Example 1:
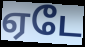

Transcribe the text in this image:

ஏடே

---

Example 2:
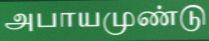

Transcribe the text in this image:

அபாயமுண்டு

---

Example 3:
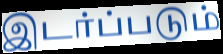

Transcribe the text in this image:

இடர்ப்படும்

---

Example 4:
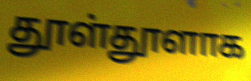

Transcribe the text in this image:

தூள்தூளாக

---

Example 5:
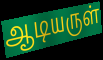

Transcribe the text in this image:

ஆடியருள்